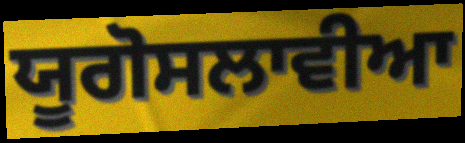
ਯੂਗੋਸਲਾਵੀਆ